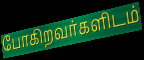
போகிறவர்களிடம்